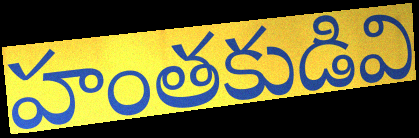
హంతకుడివి